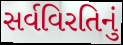
સર્વવિરતિનું